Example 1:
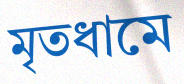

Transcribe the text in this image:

মৃতধামে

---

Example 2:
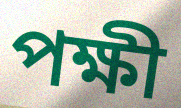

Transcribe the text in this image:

পক্ষী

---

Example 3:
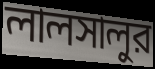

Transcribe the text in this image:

লালসালুর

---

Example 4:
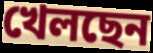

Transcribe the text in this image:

খেলছেন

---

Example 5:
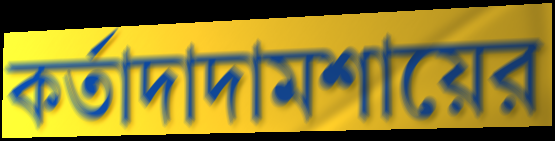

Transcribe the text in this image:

কর্তাদাদামশায়ের